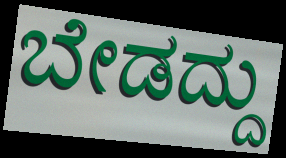
ಬೇಡದ್ದು